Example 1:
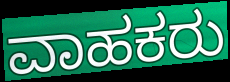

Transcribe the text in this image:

ವಾಹಕರು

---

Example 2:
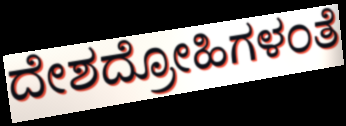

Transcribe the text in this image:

ದೇಶದ್ರೋಹಿಗಳಂತೆ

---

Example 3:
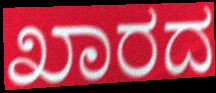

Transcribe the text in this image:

ಖಾರದ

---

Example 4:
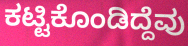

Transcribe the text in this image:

ಕಟ್ಟಿಕೊಂಡಿದ್ದೆವು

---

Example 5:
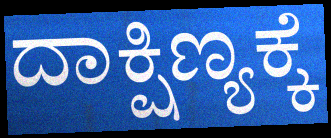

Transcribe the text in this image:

ದಾಕ್ಷಿಣ್ಯಕ್ಕೆ